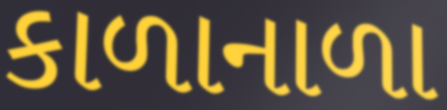
કાળાનાળા